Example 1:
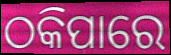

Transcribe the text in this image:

ଠକିପାରେ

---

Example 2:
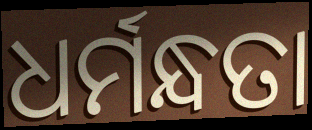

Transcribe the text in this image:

ଧର୍ମନ୍ଧତା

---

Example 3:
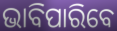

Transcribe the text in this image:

ଭାବିପାରିବେ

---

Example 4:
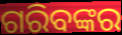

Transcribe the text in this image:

ଗରିବଙ୍କର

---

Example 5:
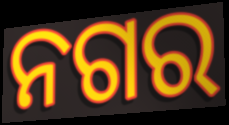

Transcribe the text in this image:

ନଗର